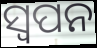
ସ୍ବପନ